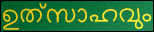
ഉത്‌സാഹവും